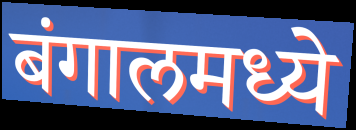
बंगालमध्ये